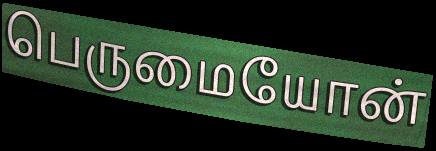
பெருமையோன்